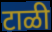
टाळी